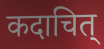
कदाचित्